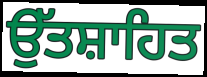
ਉੱਤਸ਼ਾਹਿਤ